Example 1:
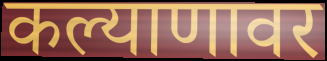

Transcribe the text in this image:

कल्याणावर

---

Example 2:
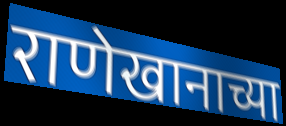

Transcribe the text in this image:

राणेखानाच्या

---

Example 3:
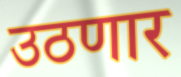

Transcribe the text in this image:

उठणार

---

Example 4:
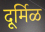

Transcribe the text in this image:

दूर्मिळ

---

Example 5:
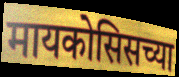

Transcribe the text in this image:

मायकोसिसच्या